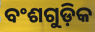
ବଂଶଗୁଡ଼ିକ